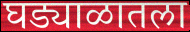
घड्याळातला